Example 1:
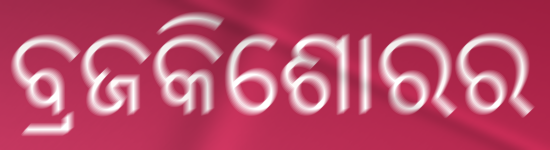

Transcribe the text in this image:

ବ୍ରଜକିଶୋରର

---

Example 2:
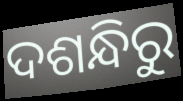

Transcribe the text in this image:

ଦଶନ୍ଧିରୁ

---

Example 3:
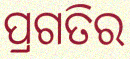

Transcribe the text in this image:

ପ୍ରଗତିର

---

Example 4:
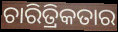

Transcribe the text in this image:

ଚାରିତ୍ରିକତାର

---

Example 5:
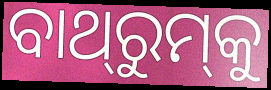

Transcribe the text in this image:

ବାଥ୍‌ରୁମ୍‌କୁ